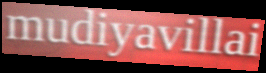
mudiyavillai